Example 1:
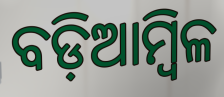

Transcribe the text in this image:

ବଡ଼ିଆମ୍ବିଳ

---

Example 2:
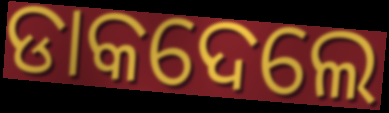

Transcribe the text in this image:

ଡାକଦେଲେ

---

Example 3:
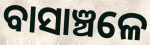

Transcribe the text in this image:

ବାସାଞ୍ଚଳେ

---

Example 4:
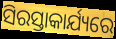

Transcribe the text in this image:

ସିରସ୍ତାକାର୍ଯ୍ୟରେ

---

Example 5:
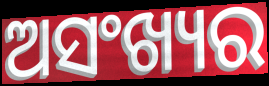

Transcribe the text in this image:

ଅସଂଖ୍ୟର